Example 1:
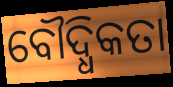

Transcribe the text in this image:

ବୌଦ୍ଧିକତା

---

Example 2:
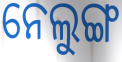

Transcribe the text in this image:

ନେଲୁଙ୍ଗ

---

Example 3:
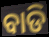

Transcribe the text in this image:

ବାଡି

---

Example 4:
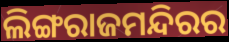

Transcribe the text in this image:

ଲିଙ୍ଗରାଜମନ୍ଦିରର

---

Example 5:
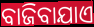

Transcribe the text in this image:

ବାଜିବାଯାଏ